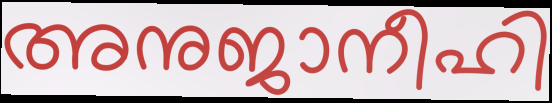
അനുജാനീഹി